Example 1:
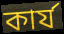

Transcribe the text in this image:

কার্য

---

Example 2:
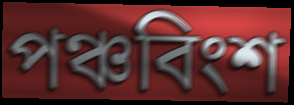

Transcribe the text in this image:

পঞ্চবিংশ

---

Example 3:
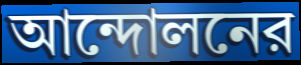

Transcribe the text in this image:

আন্দোলনের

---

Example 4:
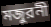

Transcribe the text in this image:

মজুরনী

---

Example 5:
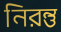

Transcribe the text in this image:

নিরন্তু